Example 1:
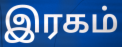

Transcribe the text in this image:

இரகம்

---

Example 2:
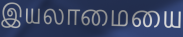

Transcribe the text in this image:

இயலாமையை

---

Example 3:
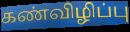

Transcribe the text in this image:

கண்விழிப்பு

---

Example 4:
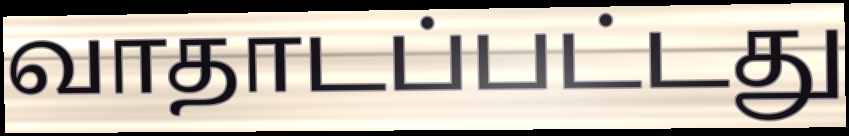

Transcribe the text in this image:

வாதாடப்பட்டது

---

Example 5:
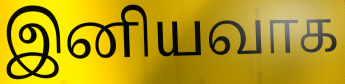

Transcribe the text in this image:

இனியவாக